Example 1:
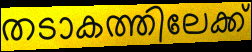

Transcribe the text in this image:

തടാകത്തിലേക്ക്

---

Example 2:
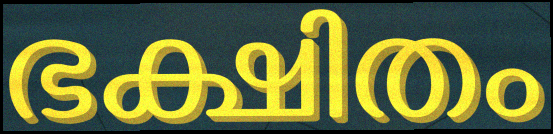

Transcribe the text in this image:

ഭക്ഷിതം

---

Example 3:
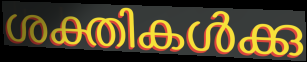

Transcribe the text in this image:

ശക്തികൾക്കു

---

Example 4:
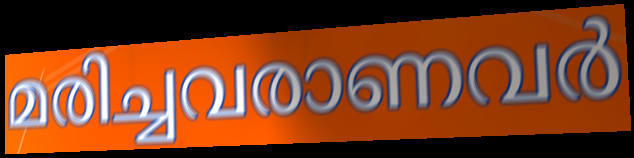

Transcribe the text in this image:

മരിച്ചവരാണവർ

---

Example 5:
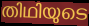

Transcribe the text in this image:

തിഥിയുടെ